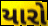
યારો